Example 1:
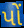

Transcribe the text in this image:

પોં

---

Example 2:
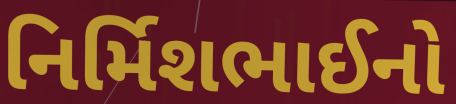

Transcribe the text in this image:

નિર્મિશભાઈનો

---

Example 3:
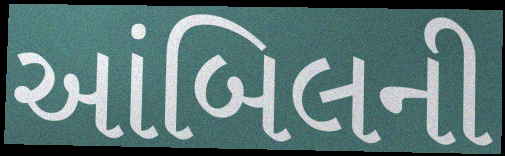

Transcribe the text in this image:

આંબિલની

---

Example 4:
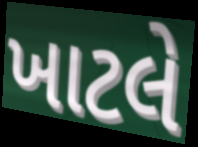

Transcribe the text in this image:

ખાટલે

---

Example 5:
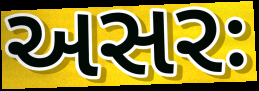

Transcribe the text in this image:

અસરઃ